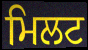
ਮਿਲਟ